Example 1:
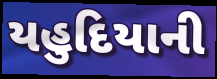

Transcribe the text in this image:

યહુદિયાની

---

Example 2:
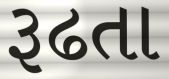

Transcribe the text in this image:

રૂઢતા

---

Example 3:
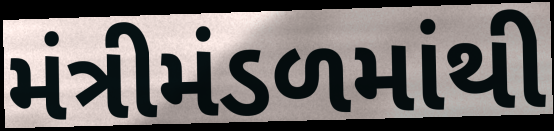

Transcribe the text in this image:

મંત્રીમંડળમાંથી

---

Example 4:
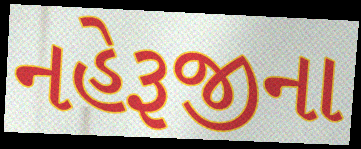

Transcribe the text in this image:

નહેરૂજીના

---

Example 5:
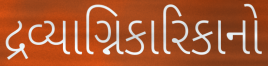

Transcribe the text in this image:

દ્રવ્યાગ્નિકારિકાનો